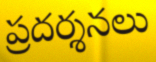
ప్రదర్శనలు